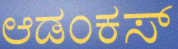
ಆಡಂಕಸ್